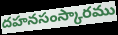
దహనసంస్కారము